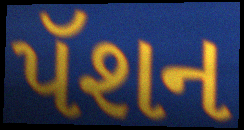
પૅશન